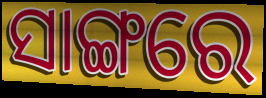
ସାଙ୍ଗରେ